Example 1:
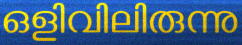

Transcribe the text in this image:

ഒളിവിലിരുന്നു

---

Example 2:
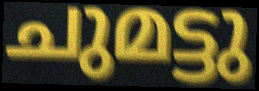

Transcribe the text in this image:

ചുമട്ടു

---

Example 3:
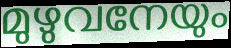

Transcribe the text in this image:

മുഴുവനേയും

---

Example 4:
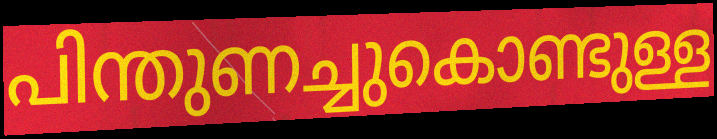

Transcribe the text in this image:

പിന്തുണച്ചുകൊണ്ടുള്ള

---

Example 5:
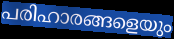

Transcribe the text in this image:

പരിഹാരങ്ങളെയും